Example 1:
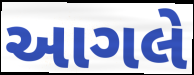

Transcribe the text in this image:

આગલે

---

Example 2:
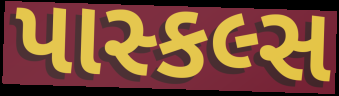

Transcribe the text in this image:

પાસ્કલ્સ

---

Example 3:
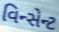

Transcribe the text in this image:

વિન્સેન્ટ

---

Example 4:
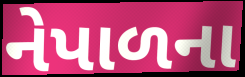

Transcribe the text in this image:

નેપાળના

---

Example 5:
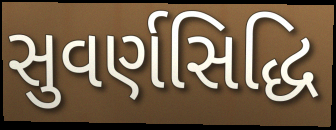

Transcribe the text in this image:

સુવર્ણસિદ્ધિ